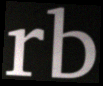
rb